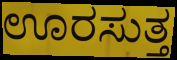
ಊರಸುತ್ತ